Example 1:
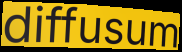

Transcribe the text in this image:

diffusum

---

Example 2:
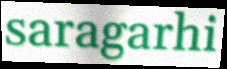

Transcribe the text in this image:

saragarhi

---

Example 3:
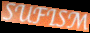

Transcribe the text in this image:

SUFISM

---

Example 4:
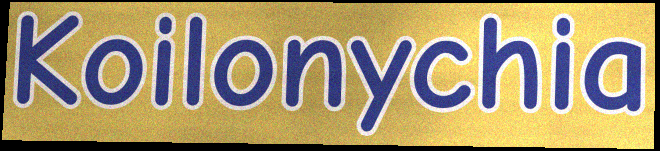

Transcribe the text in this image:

Koilonychia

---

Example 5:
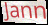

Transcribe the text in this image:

Jann